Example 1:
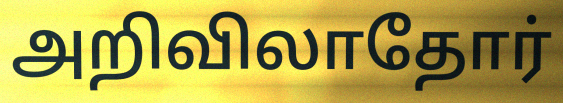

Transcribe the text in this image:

அறிவிலாதோர்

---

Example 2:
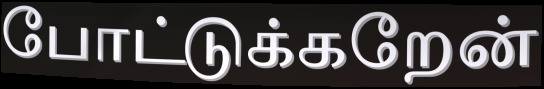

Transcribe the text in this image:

போட்டுக்கறேன்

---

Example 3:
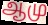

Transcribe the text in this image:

ஆமு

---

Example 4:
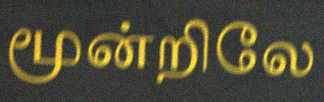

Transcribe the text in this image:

மூன்றிலே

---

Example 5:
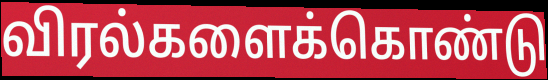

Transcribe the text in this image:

விரல்களைக்கொண்டு